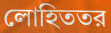
লোহিততর